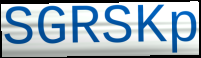
SGRSKp